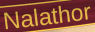
Nalathor